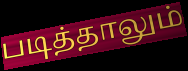
படித்தாலும்